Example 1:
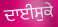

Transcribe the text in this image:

ਦਾਈਸੁਕੇ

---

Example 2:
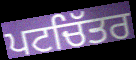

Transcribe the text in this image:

ਪਟਚਿੱਤਰ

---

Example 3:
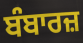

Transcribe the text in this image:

ਬੰਬਾਰਜ਼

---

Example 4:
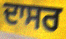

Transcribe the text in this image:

ਦਾਸਰ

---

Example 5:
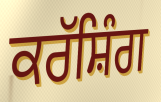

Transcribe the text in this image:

ਕਰੱਸ਼ਿੰਗ